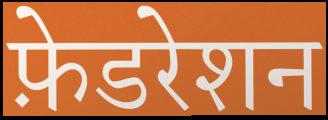
फ़ेडरेशन